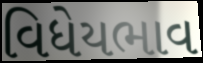
વિધેયભાવ